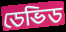
ডেভিড